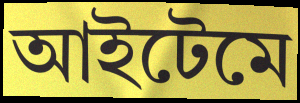
আইটেমে